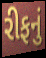
રીફનું